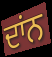
ਦਾਂਨ